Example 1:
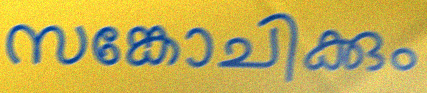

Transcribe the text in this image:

സങ്കോചിക്കും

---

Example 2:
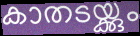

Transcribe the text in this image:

കാതടയ്ക്കും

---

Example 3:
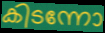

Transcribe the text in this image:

കിടന്നോ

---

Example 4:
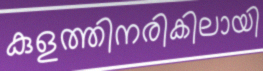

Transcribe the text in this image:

കുളത്തിനരികിലായി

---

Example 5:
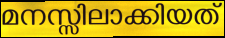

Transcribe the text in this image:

മനസ്സിലാക്കിയത്